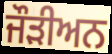
ਜੌੜੀਅਨ